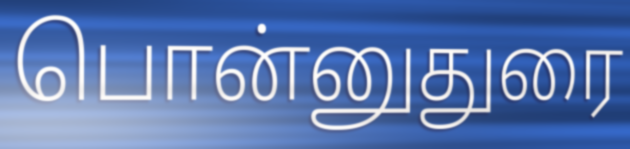
பொன்னுதுரை